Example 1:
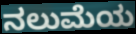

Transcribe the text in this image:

ನಲುಮೆಯ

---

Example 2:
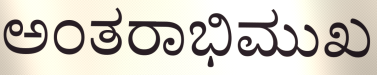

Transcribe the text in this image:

ಅಂತರಾಭಿಮುಖ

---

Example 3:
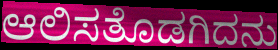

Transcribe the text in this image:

ಆಲಿಸತೊಡಗಿದನು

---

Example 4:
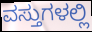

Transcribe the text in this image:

ವಸ್ತುಗಳಲ್ಲಿ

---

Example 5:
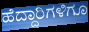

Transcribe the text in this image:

ಹೆದ್ದಾರಿಗಳಿಗೂ